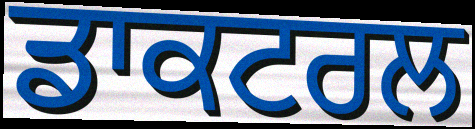
ਡਾਕਟਰਲ